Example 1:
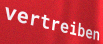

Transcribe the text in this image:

vertreiben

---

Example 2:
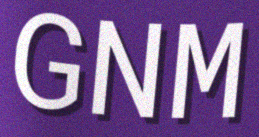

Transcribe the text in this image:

GNM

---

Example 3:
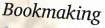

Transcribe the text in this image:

Bookmaking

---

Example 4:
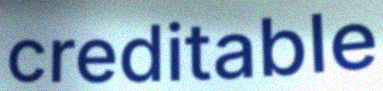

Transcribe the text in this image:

creditable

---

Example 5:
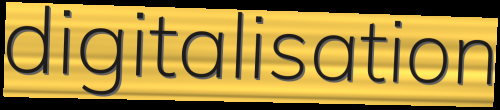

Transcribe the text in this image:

digitalisation